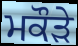
ਮਕੌੜੇ